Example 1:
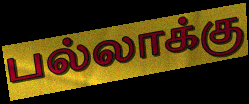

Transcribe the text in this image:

பல்லாக்கு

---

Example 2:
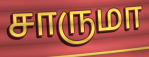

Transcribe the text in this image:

சாருமா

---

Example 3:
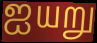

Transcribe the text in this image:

ஐயறு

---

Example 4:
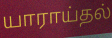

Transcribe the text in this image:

யாராய்தல்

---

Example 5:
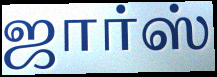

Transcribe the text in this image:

ஜார்ஸ்